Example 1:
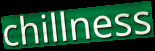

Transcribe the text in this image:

chillness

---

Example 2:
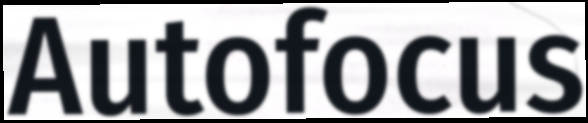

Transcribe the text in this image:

Autofocus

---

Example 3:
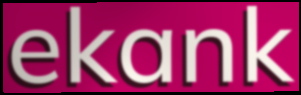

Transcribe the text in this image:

ekank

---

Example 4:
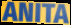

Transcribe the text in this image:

ANITA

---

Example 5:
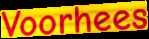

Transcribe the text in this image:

Voorhees